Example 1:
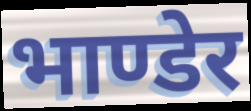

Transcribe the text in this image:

भाण्डेर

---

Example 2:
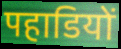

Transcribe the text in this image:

पहाडियों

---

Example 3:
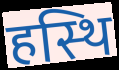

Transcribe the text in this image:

हस्थि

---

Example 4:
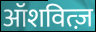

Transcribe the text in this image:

ऑशवित्ज़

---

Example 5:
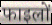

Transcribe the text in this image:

फाइलों